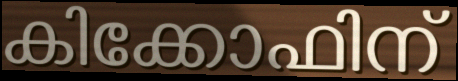
കിക്കോഫിന്